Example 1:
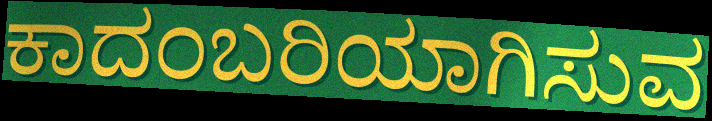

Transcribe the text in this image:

ಕಾದಂಬರಿಯಾಗಿಸುವ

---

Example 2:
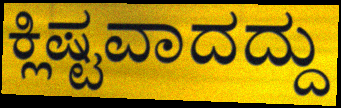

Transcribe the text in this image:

ಕ್ಲಿಷ್ಟವಾದದ್ದು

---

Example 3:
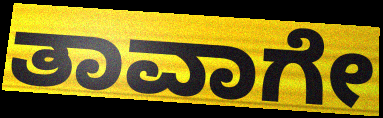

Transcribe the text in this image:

ತಾವಾಗೇ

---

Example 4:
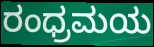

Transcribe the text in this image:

ರಂಧ್ರಮಯ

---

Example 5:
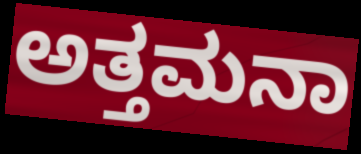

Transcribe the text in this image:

ಅತ್ತಮನಾ